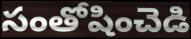
సంతోషించెడి